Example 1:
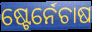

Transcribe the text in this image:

ଷ୍ଟେର୍ନେଚାଷ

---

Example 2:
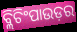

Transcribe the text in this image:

ବ୍ଲିଚିଂପାଉଡ଼ର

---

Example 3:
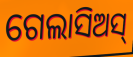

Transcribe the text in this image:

ଗେଲାସିଅସ୍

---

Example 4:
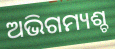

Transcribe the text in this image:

ଅଭିଗମ୍ୟଶ୍ଚ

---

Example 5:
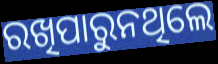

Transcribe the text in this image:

ରଖିପାରୁନଥିଲେ